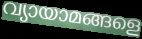
വ്യായാമങ്ങളെ